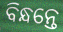
ବିନ୍ଧନ୍ତେ